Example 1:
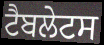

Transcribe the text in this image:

ਟੈਬਲੇਟਸ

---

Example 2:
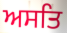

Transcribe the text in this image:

ਅਸਤਿ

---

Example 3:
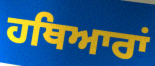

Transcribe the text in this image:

ਹਥਿਆਰਾਂ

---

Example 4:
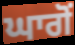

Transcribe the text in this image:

ਘਾਗੋਂ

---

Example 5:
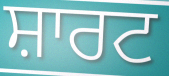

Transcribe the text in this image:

ਸ਼ਾਰਟ